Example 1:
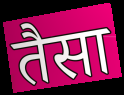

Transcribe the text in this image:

तैसा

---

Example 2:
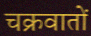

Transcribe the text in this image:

चक्रवातों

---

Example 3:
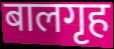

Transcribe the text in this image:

बालगृह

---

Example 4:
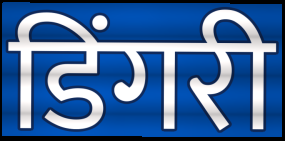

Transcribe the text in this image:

डिंगरी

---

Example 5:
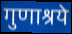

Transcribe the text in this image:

गुणाश्रये